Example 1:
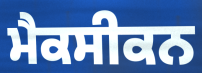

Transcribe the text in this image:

ਮੈਕਸੀਕਨ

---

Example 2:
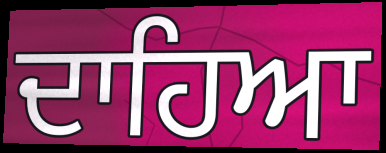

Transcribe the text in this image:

ਦਾਹਿਆ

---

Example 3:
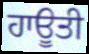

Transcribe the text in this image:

ਹਾਊਤੀ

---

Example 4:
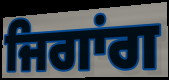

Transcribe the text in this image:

ਜਿਗਾਂਗ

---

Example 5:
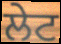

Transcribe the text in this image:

ਲੇਟ